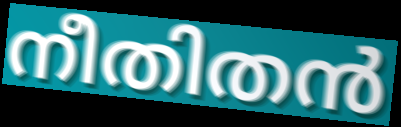
നീതിതൻ